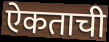
ऐकताची